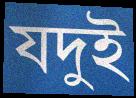
যদুই